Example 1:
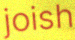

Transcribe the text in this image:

joish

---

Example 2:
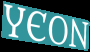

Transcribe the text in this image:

YEON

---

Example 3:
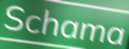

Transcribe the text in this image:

Schama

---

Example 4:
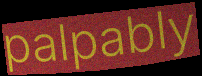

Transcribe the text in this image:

palpably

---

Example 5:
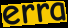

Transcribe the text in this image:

erra